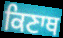
ਕਿਣਾਥ